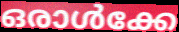
ഒരാൾക്കേ